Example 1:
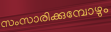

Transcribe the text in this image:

സംസാരിക്കുമ്പോഴും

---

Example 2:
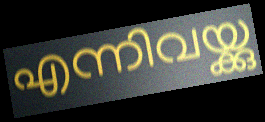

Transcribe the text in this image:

എന്നിവയ്ക്കു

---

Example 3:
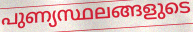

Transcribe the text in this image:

പുണ്യസ്ഥലങ്ങളുടെ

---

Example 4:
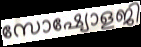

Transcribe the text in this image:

സോഷ്യോളജി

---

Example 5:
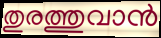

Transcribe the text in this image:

തുരത്തുവാൻ